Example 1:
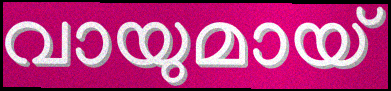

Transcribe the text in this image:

വായുമായ്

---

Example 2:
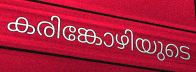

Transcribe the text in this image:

കരിങ്കോഴിയുടെ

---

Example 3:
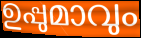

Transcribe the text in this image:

ഉപ്പുമാവും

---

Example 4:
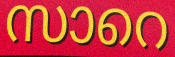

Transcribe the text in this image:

സാറെ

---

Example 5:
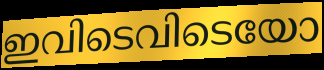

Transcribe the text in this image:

ഇവിടെവിടെയോ